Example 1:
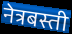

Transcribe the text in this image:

नेत्रबस्ती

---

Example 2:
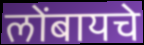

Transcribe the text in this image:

लोंबायचे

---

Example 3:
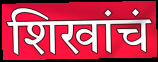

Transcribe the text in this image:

शिखांचं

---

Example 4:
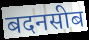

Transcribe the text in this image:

बदनसीब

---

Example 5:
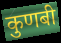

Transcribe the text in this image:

कुणबी